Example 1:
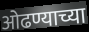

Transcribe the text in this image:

ओढण्याच्या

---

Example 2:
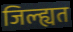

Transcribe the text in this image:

जिल्ह्यत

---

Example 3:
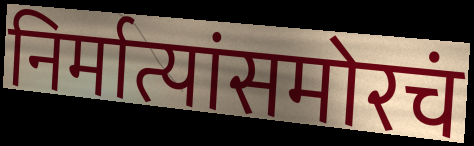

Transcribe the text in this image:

निर्मात्यांसमोरचं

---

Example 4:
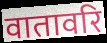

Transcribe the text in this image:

वातावरि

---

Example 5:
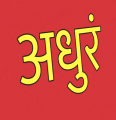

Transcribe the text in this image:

अधुरं